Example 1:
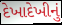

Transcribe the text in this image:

દેખાદેખીનું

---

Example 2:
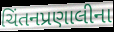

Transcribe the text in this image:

ચિંતનપ્રણાલીના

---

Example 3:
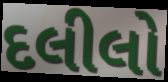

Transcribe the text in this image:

દલીલો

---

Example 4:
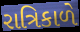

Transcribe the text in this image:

રાત્રિકાળે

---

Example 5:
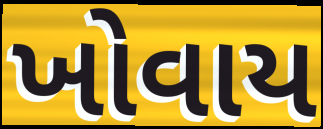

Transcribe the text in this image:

ખોવાય